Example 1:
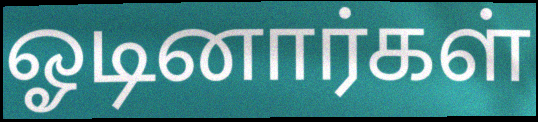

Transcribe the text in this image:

ஓடினார்கள்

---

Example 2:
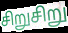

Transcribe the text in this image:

சிறுசிறு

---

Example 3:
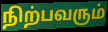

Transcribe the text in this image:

நிற்பவரும்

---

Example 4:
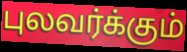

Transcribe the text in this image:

புலவர்க்கும்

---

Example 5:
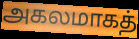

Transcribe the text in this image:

அகலமாகத்